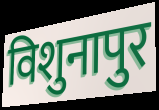
विशुनापुर